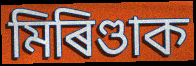
মিৰিণ্ডাক